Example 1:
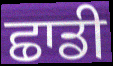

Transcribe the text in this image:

ਛਾਡੀ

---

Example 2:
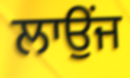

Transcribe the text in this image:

ਲਾਉਂਜ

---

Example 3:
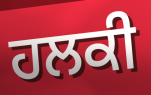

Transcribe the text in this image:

ਹਲਕੀ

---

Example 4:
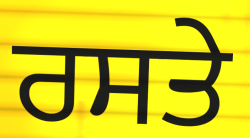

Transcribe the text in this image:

ਰਸਤੇ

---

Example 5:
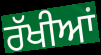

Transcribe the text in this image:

ਰੱਖੀਆਂ